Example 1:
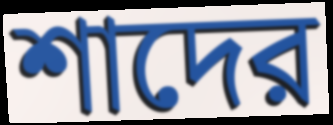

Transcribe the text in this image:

শাদের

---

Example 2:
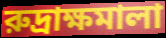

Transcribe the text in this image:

রুদ্রাক্ষমালা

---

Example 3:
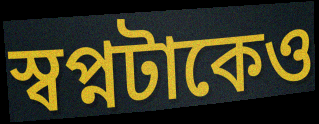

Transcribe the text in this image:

স্বপ্নটাকেও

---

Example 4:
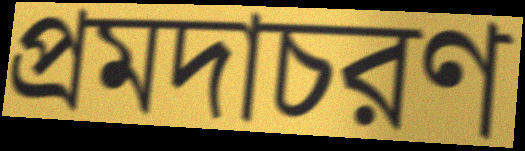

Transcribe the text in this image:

প্রমদাচরণ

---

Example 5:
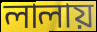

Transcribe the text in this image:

লালায়